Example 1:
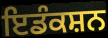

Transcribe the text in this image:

ਇਡੰਕਸ਼ਨ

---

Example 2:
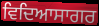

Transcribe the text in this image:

ਵਿਦਿਆਸਾਗਰ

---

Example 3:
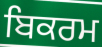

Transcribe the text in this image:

ਬਿਕਰਮ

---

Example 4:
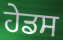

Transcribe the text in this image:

ਹੇਡਸ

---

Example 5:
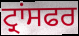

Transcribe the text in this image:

ਟ੍ਰਾਂਸਫਰ